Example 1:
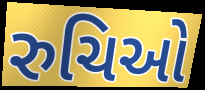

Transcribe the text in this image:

રુચિઓ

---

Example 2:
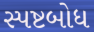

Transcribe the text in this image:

સ્પષ્ટબોધ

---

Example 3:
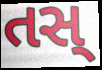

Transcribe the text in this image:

તસ્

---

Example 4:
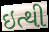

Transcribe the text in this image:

ઇત્થી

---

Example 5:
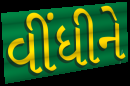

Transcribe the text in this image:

વીંધીને